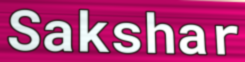
Sakshar